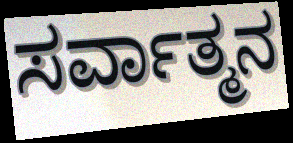
ಸರ್ವಾತ್ಮನ